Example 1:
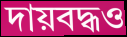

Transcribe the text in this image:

দায়বদ্ধও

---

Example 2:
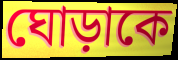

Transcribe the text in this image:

ঘোড়াকে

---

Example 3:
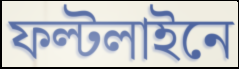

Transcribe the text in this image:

ফল্টলাইনে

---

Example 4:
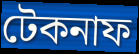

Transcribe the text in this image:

টেকনাফ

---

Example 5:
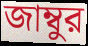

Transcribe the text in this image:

জাম্বুর